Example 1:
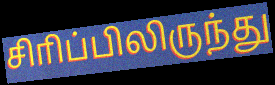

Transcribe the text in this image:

சிரிப்பிலிருந்து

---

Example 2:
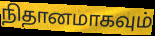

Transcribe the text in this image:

நிதானமாகவும்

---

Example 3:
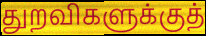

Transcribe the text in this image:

துறவிகளுக்குத்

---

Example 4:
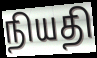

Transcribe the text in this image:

நியதி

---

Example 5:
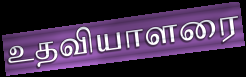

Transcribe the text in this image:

உதவியாளரை